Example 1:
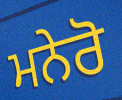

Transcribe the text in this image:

ਮਨੇਰੋ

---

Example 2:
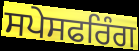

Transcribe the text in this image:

ਸਪੇਸਫਰਿੰਗ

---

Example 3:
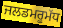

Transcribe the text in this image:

ਜਲਡਮਰੂਮੱਧ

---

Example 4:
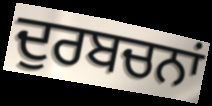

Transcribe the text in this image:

ਦੁਰਬਚਨਾਂ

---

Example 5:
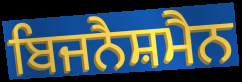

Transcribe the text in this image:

ਬਿਜਨੈਸ਼ਮੈਨ